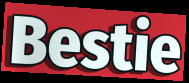
Bestie